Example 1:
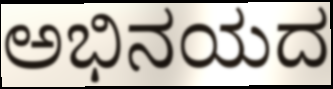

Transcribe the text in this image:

ಅಭಿನಯದ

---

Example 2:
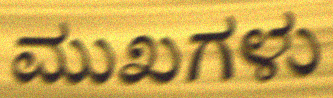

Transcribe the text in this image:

ಮುಖಗಳು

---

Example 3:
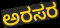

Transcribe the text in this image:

ಅರಸರ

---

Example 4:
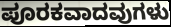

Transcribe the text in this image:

ಪೂರಕವಾದವುಗಳು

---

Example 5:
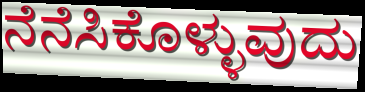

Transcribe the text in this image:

ನೆನೆಸಿಕೊಳ್ಳುವುದು